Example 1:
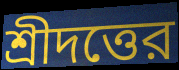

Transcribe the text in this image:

শ্রীদত্তের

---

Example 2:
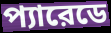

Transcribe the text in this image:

প্যারেডে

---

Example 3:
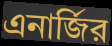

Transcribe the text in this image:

এনার্জির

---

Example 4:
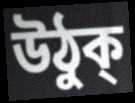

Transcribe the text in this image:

উঠুক্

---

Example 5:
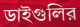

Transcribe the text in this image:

ডাইগুলির